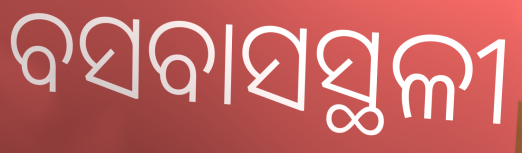
ବସବାସସ୍ଥଳୀ